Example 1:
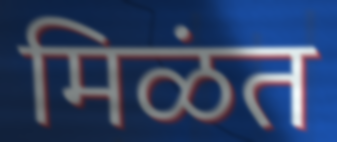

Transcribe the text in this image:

मिळंत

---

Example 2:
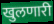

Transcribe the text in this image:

खुलणारी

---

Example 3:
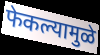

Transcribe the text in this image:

फेकल्यामुळे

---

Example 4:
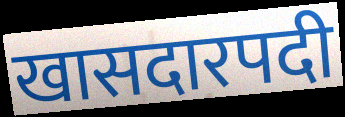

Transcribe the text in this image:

खासदारपदी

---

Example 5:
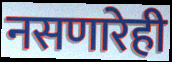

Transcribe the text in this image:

नसणारेही